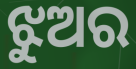
ଝୁଅର